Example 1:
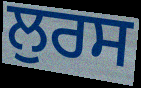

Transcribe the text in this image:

ਲੁਰਸ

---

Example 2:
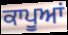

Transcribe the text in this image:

ਕਾਪੂਆਂ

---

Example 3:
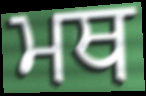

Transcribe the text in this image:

ਮਥ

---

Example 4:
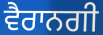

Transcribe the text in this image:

ਵੈਰਾਨਗੀ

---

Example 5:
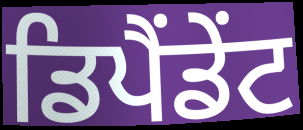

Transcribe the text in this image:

ਡਿਪੈਂਡੇਂਟ